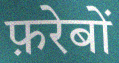
फ़रेबों